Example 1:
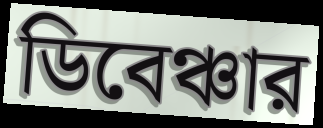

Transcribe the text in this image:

ডিবেঞ্চার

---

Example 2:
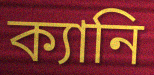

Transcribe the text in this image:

ক্যানি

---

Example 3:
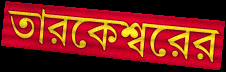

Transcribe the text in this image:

তারকেশ্বরের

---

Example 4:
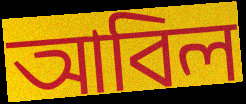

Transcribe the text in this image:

আবিল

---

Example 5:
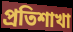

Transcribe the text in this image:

প্রতিশাখা